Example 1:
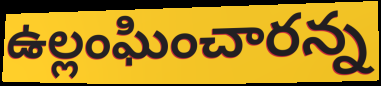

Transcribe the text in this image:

ఉల్లంఘించారన్న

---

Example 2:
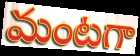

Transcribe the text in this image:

మంటగా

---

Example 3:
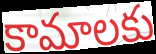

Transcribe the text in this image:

కామాలకు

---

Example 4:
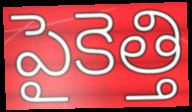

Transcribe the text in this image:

పైకెత్తి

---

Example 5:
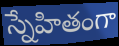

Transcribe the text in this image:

స్నేహితంగా